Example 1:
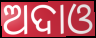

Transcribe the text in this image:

ଅଦାଓ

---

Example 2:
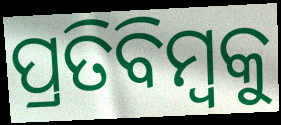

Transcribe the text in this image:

ପ୍ରତିବିମ୍ବକୁ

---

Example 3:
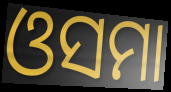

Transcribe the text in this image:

ଓସମା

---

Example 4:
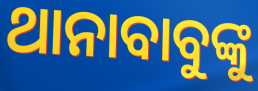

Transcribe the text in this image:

ଥାନାବାବୁଙ୍କୁ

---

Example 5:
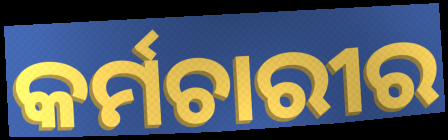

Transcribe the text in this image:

କର୍ମଚାରୀର